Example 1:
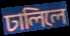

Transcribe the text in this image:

ঢালিলে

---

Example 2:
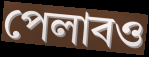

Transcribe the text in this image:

পেলাবও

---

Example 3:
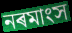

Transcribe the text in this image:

নৰমাংস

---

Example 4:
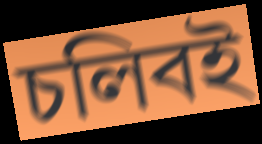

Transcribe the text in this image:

চলিবই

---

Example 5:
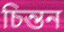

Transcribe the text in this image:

চিন্তন